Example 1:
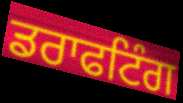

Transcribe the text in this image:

ਡਰਾਫਟਿੰਗ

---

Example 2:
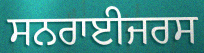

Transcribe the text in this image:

ਸਨਰਾਈਜਰਸ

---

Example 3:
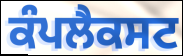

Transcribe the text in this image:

ਕੰਪਲੈਕਸਟ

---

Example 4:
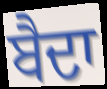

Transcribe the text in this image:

ਬੈਦਾ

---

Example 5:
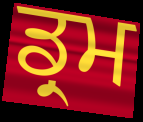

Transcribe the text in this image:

ਡ੍ਰਮ